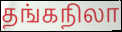
தங்கநிலா